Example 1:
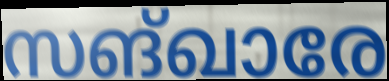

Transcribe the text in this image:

സങ്ഖാരേ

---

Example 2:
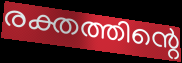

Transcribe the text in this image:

രക്തത്തിന്റെ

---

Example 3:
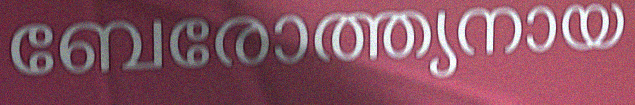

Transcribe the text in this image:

ബേരോത്ത്യനായ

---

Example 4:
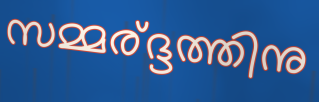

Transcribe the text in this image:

സമ്മര്ദ്ദത്തിനു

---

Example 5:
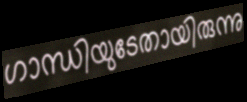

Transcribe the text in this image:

ഗാന്ധിയുടേതായിരുന്നു